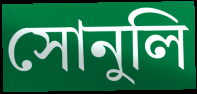
সোনুলি